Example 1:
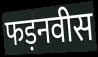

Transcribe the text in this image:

फड़नवीस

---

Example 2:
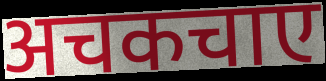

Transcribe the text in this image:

अचकचाए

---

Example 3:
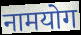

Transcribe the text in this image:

नामयोग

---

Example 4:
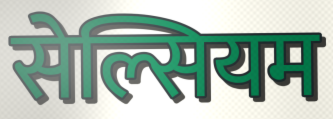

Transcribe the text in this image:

सेल्सियम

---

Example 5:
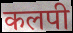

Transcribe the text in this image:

कलपी